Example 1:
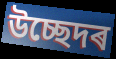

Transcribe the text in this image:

উচ্ছেদৰ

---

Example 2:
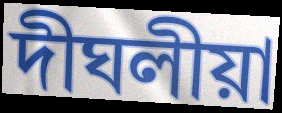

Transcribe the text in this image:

দীঘলীয়া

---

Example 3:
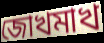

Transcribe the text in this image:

জোখমাখ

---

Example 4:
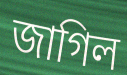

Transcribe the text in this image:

জাগিল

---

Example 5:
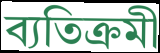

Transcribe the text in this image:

ব্যতিক্ৰমী